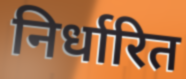
निर्धारित